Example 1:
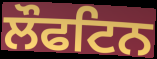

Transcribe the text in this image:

ਲੌਫਟਿਨ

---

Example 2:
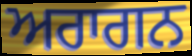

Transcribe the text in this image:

ਅਰਾਗਨ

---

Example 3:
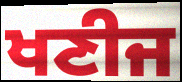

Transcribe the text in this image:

ਖਣੀਜ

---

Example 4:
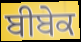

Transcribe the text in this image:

ਬੀਬੇਕ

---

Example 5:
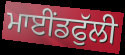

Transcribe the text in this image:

ਮਾਈਂਡਫੁੱਲੀ